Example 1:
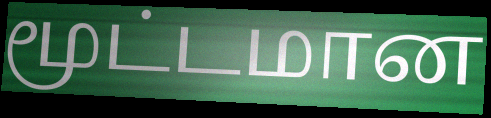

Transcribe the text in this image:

மூட்டமான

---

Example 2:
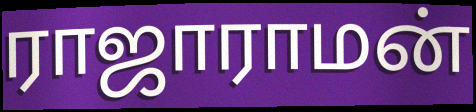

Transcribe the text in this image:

ராஜாராமன்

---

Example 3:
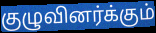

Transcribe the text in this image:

குழுவினர்க்கும்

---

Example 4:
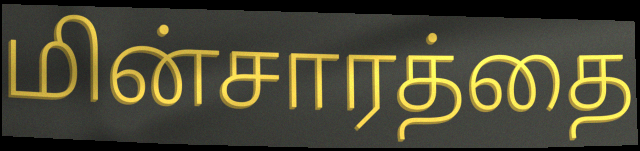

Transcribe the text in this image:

மின்சாரத்தை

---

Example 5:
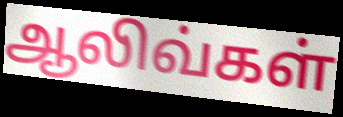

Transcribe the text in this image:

ஆலிவ்கள்